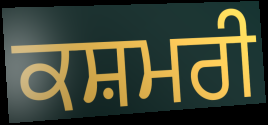
ਕਸ਼ਮਰੀ